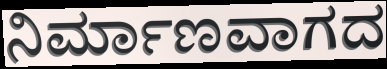
ನಿರ್ಮಾಣವಾಗದ